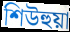
শিউহুয়া